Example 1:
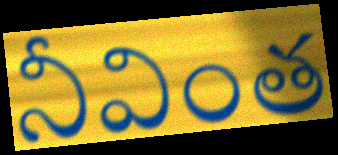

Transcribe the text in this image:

నీవింత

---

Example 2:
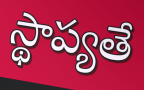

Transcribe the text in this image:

స్థాప్యతే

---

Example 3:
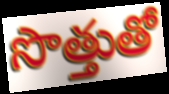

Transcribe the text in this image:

సొత్తుతో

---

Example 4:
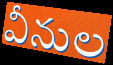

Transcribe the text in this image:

వీనుల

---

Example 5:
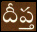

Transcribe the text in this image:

దీప్త